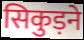
सिकुड़ने